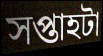
সপ্তাহটা